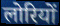
लोरियों